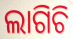
ଲାଗିଚି